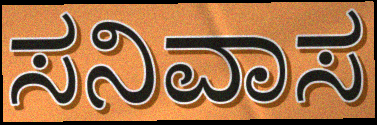
ಸನಿವಾಸ